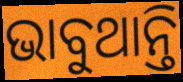
ଭାବୁଥାନ୍ତି